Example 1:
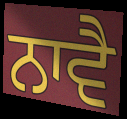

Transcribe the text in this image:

ਨਾਵੈ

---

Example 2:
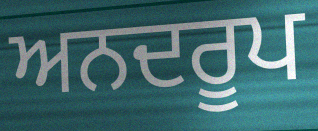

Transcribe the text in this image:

ਅਨਦਰੂਪ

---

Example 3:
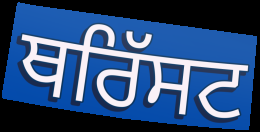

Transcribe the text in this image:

ਥਰਿੱਸਟ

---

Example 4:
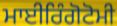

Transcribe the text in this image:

ਮਾਈਰਿੰਗੋਟੋਮੀ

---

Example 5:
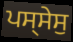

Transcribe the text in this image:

ਪਸ੍ਸੇਸੁ